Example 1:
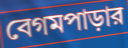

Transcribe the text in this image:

বেগমপাড়ার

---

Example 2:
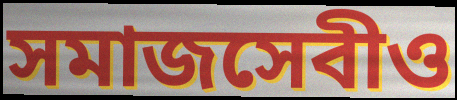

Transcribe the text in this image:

সমাজসেবীও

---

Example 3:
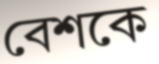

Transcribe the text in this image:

বেশকে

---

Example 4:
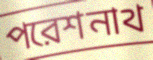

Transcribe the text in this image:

পরেশনাথ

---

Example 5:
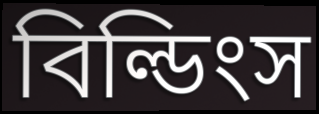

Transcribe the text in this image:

বিল্ডিংস